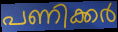
പണിക്കർ